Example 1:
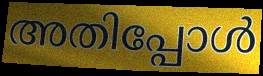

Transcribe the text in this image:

അതിപ്പോൾ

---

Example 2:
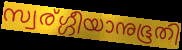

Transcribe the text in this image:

സ്വര്ഗ്ഗീയാനുഭൂതി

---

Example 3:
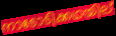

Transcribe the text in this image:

നാടോടിക്കഥയില്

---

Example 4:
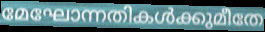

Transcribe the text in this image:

മേഘോന്നതികൾക്കുമീതേ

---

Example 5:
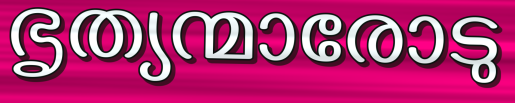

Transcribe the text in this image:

ഭൃത്യന്മാരോടു